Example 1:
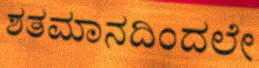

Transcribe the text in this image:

ಶತಮಾನದಿಂದಲೇ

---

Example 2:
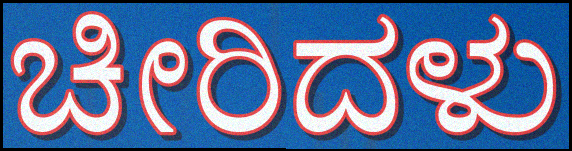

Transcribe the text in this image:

ಚೀರಿದಳು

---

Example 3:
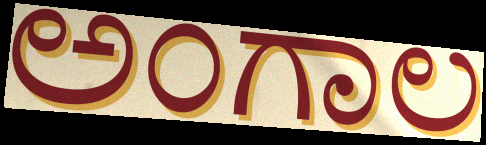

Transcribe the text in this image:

ಅಂಗಾಲ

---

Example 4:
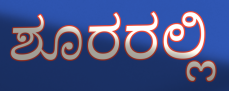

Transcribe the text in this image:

ಶೂರರಲ್ಲಿ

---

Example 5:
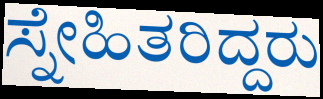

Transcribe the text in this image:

ಸ್ನೇಹಿತರಿದ್ದರು